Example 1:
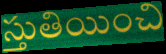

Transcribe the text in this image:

స్తుతియించి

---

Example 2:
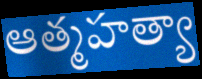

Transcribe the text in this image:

ఆత్మహత్యా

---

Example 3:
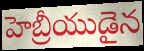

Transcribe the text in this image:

హెబ్రీయుడైన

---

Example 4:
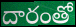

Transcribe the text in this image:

దారంతో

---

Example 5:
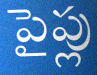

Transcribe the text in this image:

పైప్లు